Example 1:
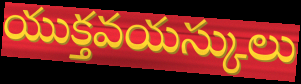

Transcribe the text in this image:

యుక్తవయస్కులు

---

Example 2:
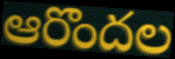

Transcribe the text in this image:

ఆరొందల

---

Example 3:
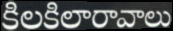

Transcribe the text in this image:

కిలకిలారావాలు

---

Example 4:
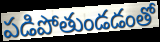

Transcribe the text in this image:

పడిపోతుండడంతో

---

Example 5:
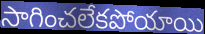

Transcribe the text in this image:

సాగించలేకపోయాయి